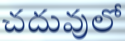
చదువులో